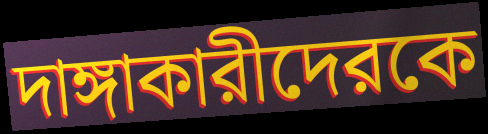
দাঙ্গাকারীদেরকে